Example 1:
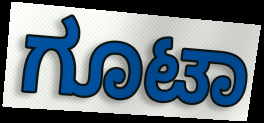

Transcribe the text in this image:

ಗೂಟಾ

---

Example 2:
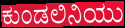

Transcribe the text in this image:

ಕುಂಡಲಿನಿಯು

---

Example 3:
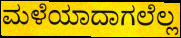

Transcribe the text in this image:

ಮಳೆಯಾದಾಗಲೆಲ್ಲ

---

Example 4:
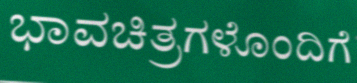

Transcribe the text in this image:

ಭಾವಚಿತ್ರಗಳೊಂದಿಗೆ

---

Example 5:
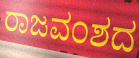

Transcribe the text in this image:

ರಾಜವಂಶದ